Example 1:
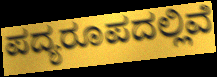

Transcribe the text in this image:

ಪದ್ಯರೂಪದಲ್ಲಿವೆ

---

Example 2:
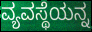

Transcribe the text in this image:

ವ್ಯವಸ್ಥೆಯನ್ನ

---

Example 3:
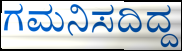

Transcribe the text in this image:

ಗಮನಿಸದಿದ್ದ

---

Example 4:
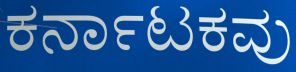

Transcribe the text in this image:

ಕರ್ನಾಟಕವು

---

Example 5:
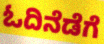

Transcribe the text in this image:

ಓದಿನೆಡೆಗೆ